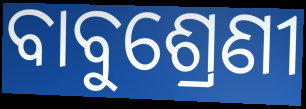
ବାବୁଶ୍ରେଣୀ